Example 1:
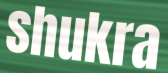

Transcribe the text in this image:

shukra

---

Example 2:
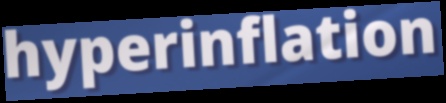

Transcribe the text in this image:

hyperinflation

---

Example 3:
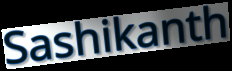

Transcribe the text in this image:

Sashikanth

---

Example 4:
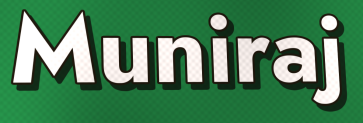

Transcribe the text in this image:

Muniraj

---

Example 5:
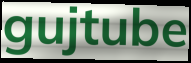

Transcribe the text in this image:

gujtube